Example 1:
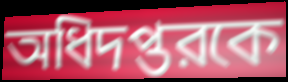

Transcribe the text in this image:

অধিদপ্তরকে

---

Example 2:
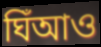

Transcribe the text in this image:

ঘিঁআও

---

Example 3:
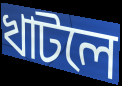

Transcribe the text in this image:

খাটলে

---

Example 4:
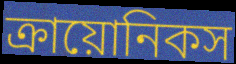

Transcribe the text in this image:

ক্রায়োনিকস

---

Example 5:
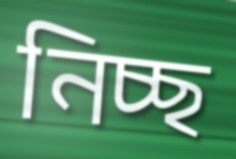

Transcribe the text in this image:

নিচ্ছ